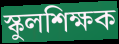
স্কুলশিক্ষক